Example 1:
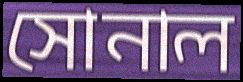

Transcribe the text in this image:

সোনাল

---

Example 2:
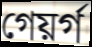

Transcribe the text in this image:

গেয়ৰ্গ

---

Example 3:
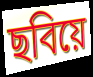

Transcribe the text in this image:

ছবিয়ে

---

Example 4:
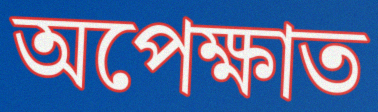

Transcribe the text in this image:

অপেক্ষাত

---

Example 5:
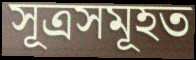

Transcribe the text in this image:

সূত্ৰসমূহত